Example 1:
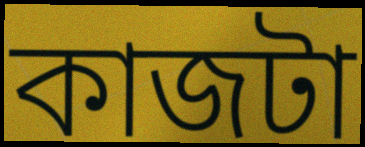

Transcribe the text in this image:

কাজটা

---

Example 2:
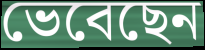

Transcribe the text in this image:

ভেবেছেন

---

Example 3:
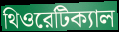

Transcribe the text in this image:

থিওরেটিক্যাল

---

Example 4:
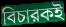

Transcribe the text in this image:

বিচারকই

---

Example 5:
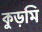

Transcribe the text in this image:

কুড়মি